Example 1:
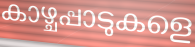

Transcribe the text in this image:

കാഴ്ചപ്പാടുകളെ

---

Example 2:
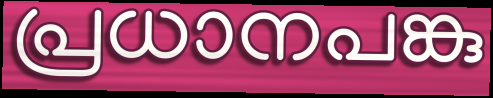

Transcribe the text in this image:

പ്രധാനപങ്കു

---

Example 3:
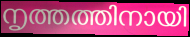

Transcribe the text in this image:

നൃത്തത്തിനായി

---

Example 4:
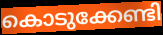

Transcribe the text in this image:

കൊടുക്കേണ്ടി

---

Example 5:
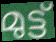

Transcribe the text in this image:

മുട്ട്